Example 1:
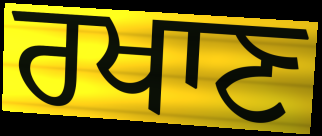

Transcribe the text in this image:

ਰਖਾਣ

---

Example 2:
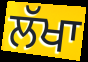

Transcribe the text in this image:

ਲੱਖਾ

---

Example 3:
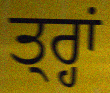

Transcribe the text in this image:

ਤ੍ਰ੍ਹਾਂ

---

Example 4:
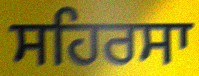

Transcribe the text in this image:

ਸਹਿਰਸਾ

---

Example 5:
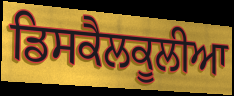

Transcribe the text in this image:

ਡਿਸਕੈਲਕੂਲੀਆ